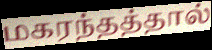
மகரந்தத்தால்